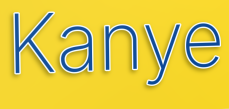
Kanye